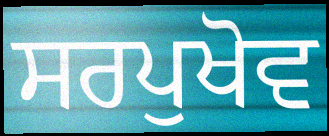
ਸਰਪੁਖੋਵ